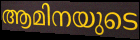
ആമിനയുടെ